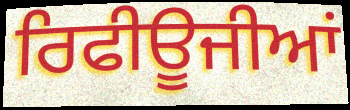
ਰਿਫੀਊਜੀਆਂ